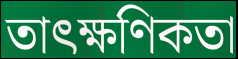
তাৎক্ষণিকতা